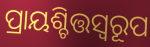
ପ୍ରାୟଶ୍ଚିତ୍ତସ୍ୱରୂପ